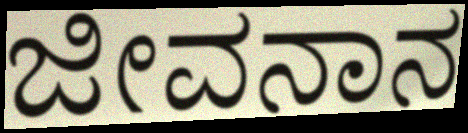
ಜೀವನಾನ